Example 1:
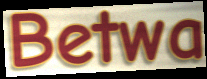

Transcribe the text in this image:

Betwa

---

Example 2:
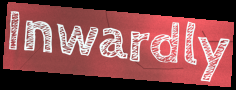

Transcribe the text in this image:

Inwardly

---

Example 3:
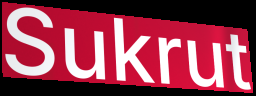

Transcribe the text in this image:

Sukrut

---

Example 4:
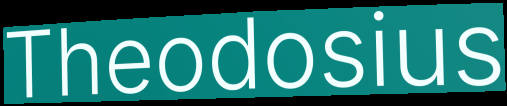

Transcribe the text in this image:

Theodosius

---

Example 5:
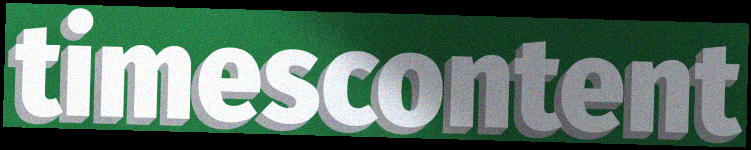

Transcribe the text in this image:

timescontent